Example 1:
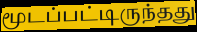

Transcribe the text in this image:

மூடப்பட்டிருந்தது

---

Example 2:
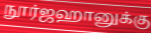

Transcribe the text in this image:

நூர்ஜஹானுக்கு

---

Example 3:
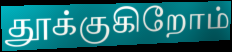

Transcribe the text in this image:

தூக்குகிறோம்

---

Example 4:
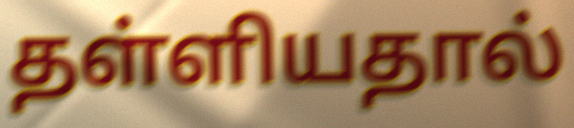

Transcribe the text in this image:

தள்ளியதால்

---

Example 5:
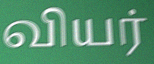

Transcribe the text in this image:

வியர்